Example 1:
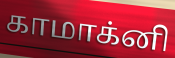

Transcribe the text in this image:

காமாக்னி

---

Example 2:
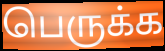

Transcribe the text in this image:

பெருக்க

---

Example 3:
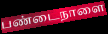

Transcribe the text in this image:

பண்டைநாளை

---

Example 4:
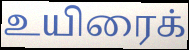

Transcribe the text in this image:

உயிரைக்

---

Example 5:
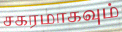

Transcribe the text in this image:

சகரமாகவும்